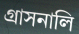
গ্রাসনালি